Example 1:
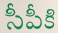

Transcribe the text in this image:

సీపీకి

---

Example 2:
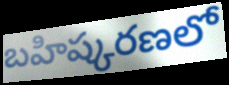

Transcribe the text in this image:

బహిష్కరణలో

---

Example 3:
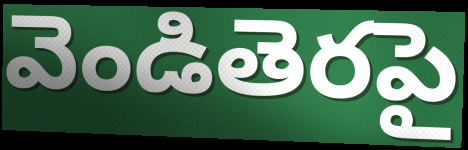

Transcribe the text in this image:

వెండితెరపై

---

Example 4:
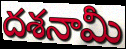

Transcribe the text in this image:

దశనామీ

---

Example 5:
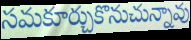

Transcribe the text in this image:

సమకూర్చుకొనుచున్నావు